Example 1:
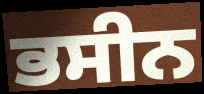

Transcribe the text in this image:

ਭਸੀਨ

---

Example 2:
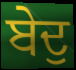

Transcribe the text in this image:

ਬੇਦੁ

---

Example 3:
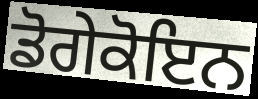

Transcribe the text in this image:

ਡੋਗੇਕੋਇਨ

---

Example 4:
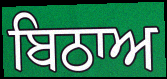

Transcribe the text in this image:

ਬਿਠਾਅ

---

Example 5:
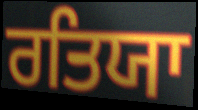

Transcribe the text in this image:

ਰਤਿਯਾ